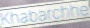
Khabarchhe